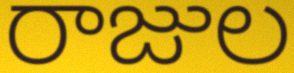
రాజుల